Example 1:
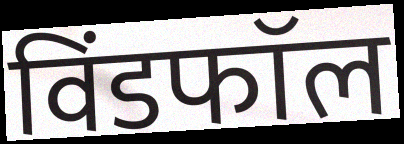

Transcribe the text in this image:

विंडफॉल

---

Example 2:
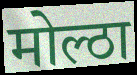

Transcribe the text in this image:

मोल्ठा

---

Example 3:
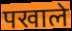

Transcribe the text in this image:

पखाले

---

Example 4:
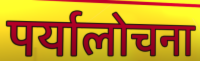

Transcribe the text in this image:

पर्यालोचना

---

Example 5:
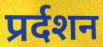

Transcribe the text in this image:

प्रर्दशन